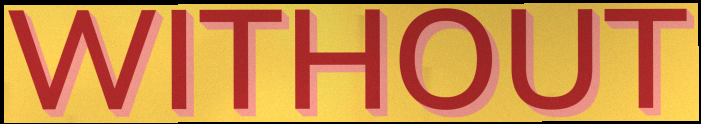
WITHOUT